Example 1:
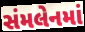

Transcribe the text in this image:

સંમલેનમાં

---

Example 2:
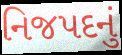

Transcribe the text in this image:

નિજપદનું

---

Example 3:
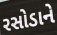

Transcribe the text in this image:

રસોડાને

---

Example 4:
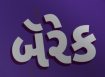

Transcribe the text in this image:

બૅરેક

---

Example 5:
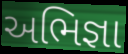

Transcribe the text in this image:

અભિજ્ઞા